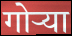
गोऱ्या